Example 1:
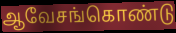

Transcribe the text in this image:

ஆவேசங்கொண்டு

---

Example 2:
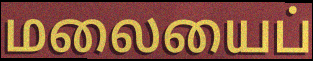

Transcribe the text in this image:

மலையைப்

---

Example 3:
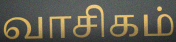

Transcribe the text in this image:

வாசிகம்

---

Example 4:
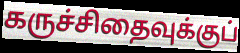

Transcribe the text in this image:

கருச்சிதைவுக்குப்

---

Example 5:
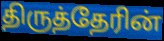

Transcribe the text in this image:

திருத்தேரின்